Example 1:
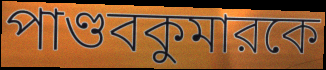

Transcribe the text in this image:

পাণ্ডবকুমারকে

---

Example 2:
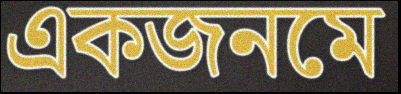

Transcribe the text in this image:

একজনমে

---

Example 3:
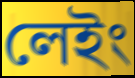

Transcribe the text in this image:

লেইং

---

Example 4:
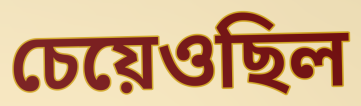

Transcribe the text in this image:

চেয়েওছিল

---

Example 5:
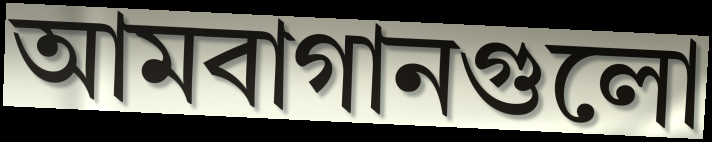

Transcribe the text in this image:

আমবাগানগুলো